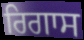
ਰਿਗਾਸ